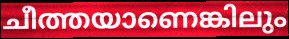
ചീത്തയാണെങ്കിലും